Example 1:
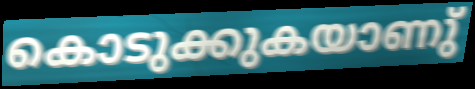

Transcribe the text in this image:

കൊടുക്കുകയാണു്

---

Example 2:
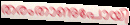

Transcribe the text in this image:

തരംതാണുപോയി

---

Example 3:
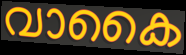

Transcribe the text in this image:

വാകൈ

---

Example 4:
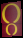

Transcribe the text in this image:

റ്റ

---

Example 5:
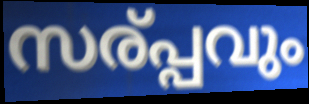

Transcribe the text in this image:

സര്പ്പവും